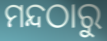
ମନ୍ଦଠାରୁ